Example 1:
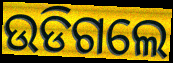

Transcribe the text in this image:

ଉଡିଗଲେ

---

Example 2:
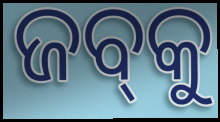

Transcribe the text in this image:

ଜବ୍‍କୁ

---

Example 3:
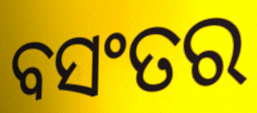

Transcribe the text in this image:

ବସଂତର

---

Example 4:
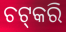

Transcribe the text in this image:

ଚଟ୍‌କରି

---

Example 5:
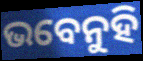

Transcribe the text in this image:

ଭବେନୁହି